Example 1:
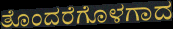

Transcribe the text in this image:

ತೊಂದರೆಗೊಳಗಾದ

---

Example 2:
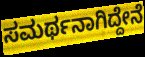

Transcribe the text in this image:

ಸಮರ್ಥನಾಗಿದ್ದೇನೆ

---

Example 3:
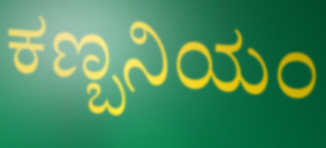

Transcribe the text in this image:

ಕಣ್ಬನಿಯಂ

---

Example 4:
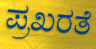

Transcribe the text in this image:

ಪ್ರಖರತೆ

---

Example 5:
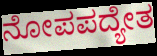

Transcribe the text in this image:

ನೋಪಪದ್ಯೇತ